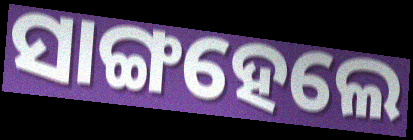
ସାଙ୍ଗହେଲେ